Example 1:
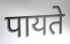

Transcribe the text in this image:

पायते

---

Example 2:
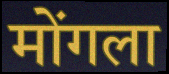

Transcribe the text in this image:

मोंगला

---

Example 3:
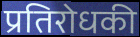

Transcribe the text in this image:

प्रतिरोधकी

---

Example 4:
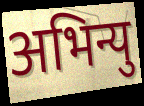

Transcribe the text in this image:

अभिन्यु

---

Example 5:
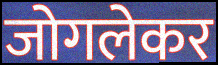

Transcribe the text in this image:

जोगलेकर